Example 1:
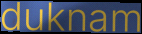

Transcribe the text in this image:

duknam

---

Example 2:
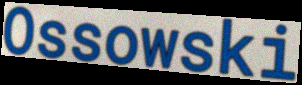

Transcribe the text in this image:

Ossowski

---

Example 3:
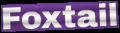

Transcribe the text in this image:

Foxtail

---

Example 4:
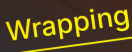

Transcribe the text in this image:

Wrapping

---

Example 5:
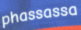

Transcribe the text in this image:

phassassa